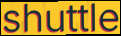
shuttle